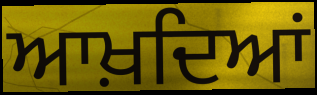
ਆਖ਼ਦਿਆਂ